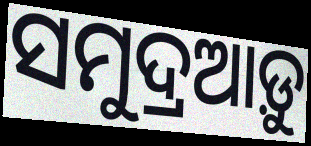
ସମୁଦ୍ରଆଡ଼ୁ